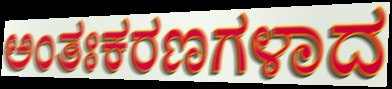
ಅಂತಃಕರಣಗಳಾದ